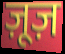
ज़ूज़